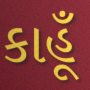
કાહૂઁ